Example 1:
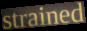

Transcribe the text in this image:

strained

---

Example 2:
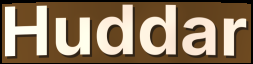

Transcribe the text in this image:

Huddar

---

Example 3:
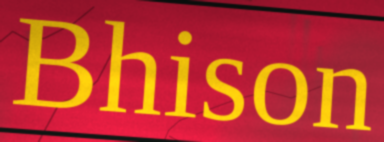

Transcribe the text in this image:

Bhison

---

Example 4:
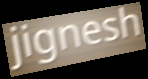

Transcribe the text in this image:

jignesh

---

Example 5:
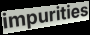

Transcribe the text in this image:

impurities